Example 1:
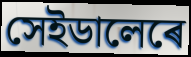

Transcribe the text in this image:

সেইডালেৰে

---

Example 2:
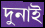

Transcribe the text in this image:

দুনাই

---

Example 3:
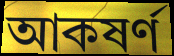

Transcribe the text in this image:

আকষৰ্ণ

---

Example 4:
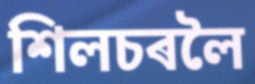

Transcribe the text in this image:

শিলচৰলৈ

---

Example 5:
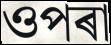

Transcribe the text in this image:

ওপৰা